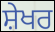
ਸ਼ੇਖਰ